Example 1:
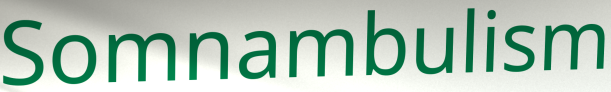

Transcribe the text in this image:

Somnambulism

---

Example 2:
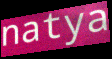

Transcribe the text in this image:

natya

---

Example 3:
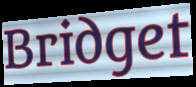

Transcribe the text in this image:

Bridget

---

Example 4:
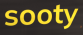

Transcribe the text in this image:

sooty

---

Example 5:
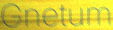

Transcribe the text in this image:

Gnetum